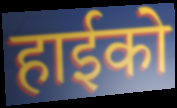
हाईको